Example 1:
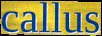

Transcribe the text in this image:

callus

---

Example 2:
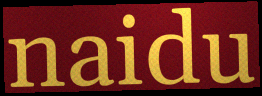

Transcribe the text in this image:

naidu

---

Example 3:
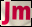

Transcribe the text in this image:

Jm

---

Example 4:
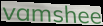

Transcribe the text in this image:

vamshee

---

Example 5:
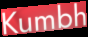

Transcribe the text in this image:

Kumbh